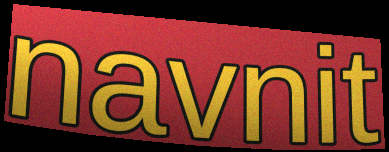
navnit